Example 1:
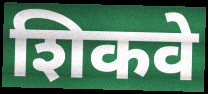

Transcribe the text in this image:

शिकवे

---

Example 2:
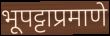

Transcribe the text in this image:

भूपट्टाप्रमाणे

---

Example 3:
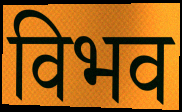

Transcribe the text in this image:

विभव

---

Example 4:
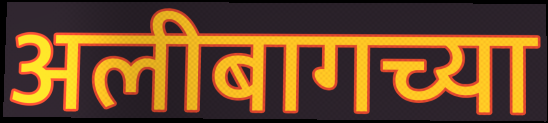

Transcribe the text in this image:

अलीबागच्या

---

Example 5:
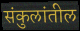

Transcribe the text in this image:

संकुलांतील